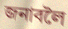
জনাবলৈ